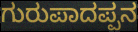
ಗುರುಪಾದಪ್ಪನ